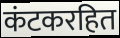
कंटकरहित